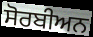
ਸੋਰਬੀਅਨ